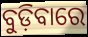
ବୁଡ଼ିବାରେ